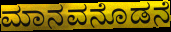
ಮಾನವನೊಡನೆ